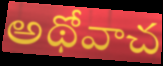
అథోవాచ